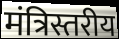
मंत्रिस्तरीय